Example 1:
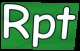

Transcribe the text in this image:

Rpt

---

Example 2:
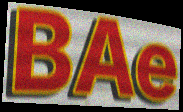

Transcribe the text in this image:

BAe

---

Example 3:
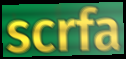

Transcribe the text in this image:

scrfa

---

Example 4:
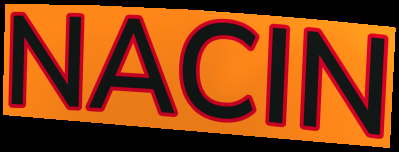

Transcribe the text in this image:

NACIN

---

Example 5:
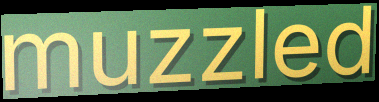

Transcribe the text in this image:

muzzled